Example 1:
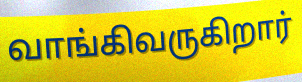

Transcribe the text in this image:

வாங்கிவருகிறார்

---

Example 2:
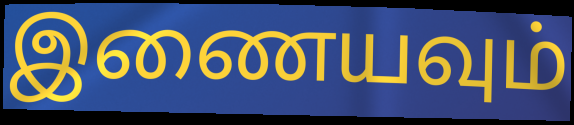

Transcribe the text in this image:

இணையவும்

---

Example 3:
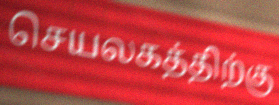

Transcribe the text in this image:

செயலகத்திற்கு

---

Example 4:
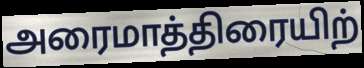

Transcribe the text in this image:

அரைமாத்திரையிற்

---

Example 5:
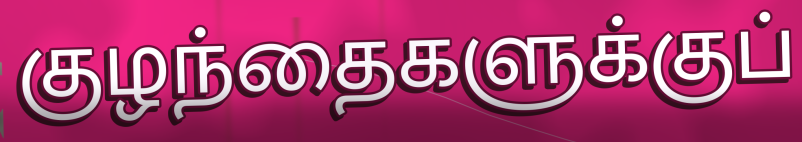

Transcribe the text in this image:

குழந்தைகளுக்குப்